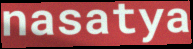
nasatya